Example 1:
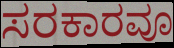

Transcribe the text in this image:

ಸರಕಾರವೂ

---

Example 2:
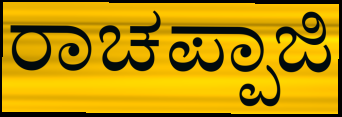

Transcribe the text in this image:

ರಾಚಪ್ಪಾಜಿ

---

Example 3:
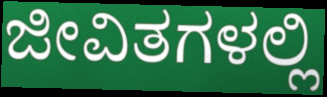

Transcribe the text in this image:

ಜೀವಿತಗಳಲ್ಲಿ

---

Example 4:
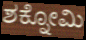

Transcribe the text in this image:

ಶಕ್ನೋಮಿ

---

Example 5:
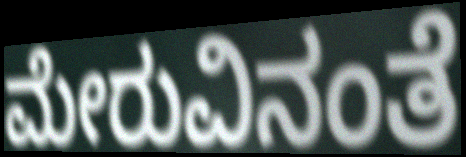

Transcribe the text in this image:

ಮೇರುವಿನಂತೆ